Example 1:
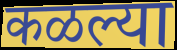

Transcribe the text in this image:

कळल्या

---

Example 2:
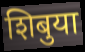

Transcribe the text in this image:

शिबुया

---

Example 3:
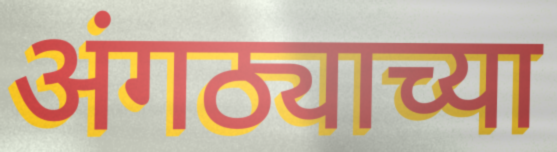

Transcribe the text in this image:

अंगठ्याच्या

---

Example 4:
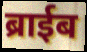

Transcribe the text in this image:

ब्राईब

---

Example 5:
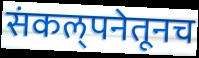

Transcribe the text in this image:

संकल्पनेतूनच